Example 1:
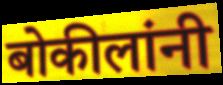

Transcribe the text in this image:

बोकीलांनी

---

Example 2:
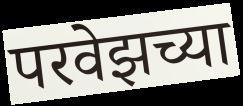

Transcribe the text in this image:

परवेझच्या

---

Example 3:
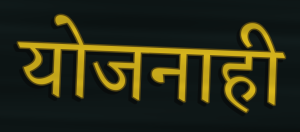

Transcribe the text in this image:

योजनाही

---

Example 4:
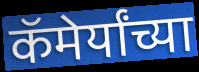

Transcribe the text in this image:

कॅमेर्यांच्या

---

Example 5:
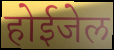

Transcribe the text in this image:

होईजेल